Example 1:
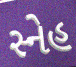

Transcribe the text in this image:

સ્નેહ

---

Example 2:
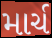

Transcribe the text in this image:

માર્ચ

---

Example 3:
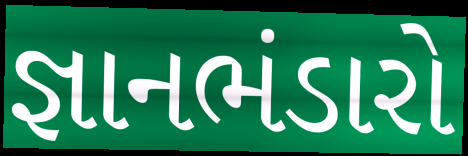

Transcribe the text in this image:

જ્ઞાનભંડારો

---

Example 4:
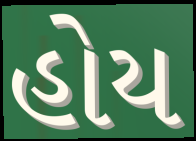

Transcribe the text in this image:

હોય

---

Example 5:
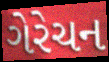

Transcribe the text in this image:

ગેરેચન